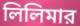
লিলিমার